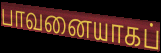
பாவனையாகப்